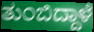
ತುಂಬಿದ್ದಾಳೆ